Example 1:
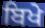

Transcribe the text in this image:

ਬਿਖੇ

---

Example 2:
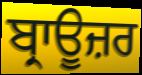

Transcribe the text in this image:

ਬ੍ਰਾਊਜ਼ਰ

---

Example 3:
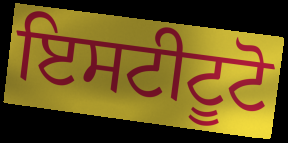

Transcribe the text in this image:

ਇਸਟੀਟੂਟੋ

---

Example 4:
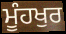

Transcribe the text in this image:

ਮੂੰਹਖੁਰ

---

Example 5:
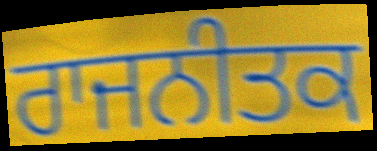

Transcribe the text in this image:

ਰਾਜਨੀਤਕ